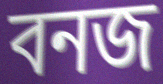
বনজ